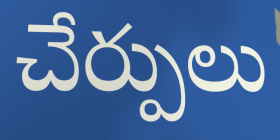
చేర్పులు